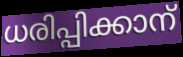
ധരിപ്പിക്കാന്